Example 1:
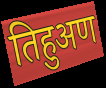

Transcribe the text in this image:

तिहुअण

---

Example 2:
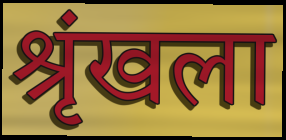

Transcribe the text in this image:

श्रृंखला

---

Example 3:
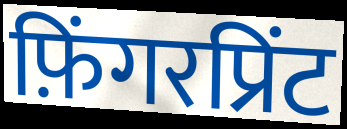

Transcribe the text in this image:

फ़िंगरप्रिंट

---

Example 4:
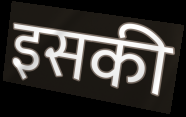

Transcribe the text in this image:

इसकी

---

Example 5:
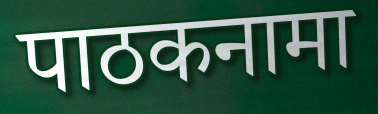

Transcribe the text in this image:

पाठकनामा